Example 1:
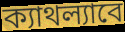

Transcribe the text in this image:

ক্যাথল্যাবে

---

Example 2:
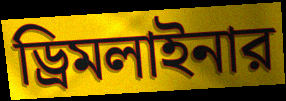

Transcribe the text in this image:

ড্রিমলাইনার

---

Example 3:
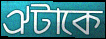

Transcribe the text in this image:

ঐটাকে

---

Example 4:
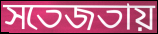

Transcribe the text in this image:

সতেজতায়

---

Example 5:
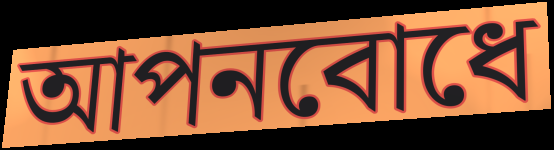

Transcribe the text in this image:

আপনবোধে